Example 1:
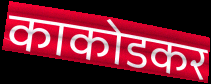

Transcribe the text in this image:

काकोडकर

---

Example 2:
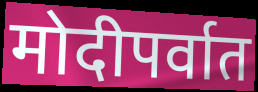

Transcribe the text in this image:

मोदीपर्वात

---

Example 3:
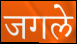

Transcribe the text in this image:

जगले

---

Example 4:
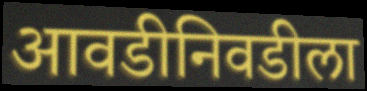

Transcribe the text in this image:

आवडीनिवडीला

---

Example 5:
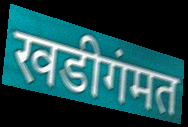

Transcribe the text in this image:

खडीगंमत